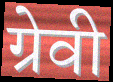
ग्रेवी